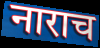
नाराच